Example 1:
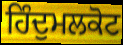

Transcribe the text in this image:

ਹਿੰਦੁਮਲਕੋਟ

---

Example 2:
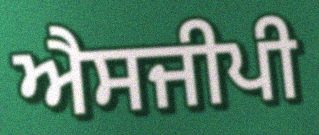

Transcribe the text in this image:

ਐਸਜੀਪੀ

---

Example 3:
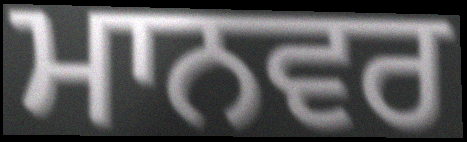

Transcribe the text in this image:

ਮਾਨਵਰ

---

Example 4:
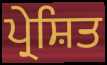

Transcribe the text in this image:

ਪ੍ਰੇਸ਼ਿਤ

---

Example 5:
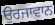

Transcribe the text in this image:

ਉਰਜਾਵਾਨ